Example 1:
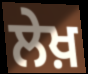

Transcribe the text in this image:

ਲੇਖ਼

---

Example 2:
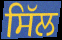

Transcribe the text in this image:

ਸਿੱਲ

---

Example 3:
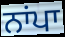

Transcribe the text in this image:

ਨਾਂਪਾ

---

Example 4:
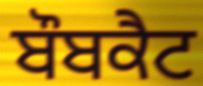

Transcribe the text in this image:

ਬੌਬਕੈਟ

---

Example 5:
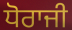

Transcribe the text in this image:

ਧੋਰਾਜੀ